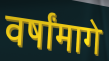
वर्षांमागे